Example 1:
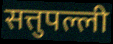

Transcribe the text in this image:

सत्तुपल्ली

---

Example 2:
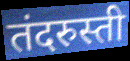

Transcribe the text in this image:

तंदरुस्ती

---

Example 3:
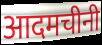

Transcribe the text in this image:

आदमचीनी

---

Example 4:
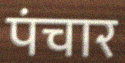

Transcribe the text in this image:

पंचार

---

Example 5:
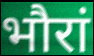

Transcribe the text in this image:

भौरां